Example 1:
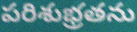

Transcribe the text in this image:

పరిశుభ్రతను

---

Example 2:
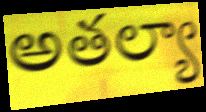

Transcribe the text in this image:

అతల్యా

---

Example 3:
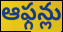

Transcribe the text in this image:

ఆఫ్గన్లు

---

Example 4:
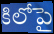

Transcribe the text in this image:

కిలోపై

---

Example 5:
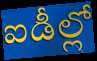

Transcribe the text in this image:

ఐడీల్లో